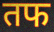
तफ